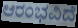
ಆರಂಭವಿದೆ